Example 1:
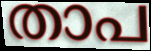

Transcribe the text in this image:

താപ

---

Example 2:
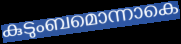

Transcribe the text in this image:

കുടുംബമൊന്നാകെ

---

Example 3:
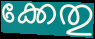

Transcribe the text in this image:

ക്കേതു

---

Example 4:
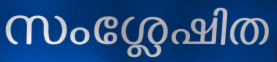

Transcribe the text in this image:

സംശ്ലേഷിത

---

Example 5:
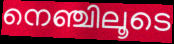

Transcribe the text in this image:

നെഞ്ചിലൂടെ